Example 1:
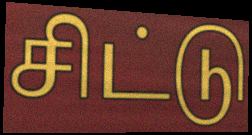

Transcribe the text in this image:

சிட்டு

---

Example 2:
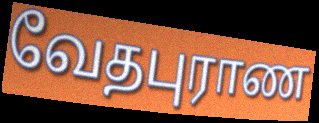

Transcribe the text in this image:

வேதபுராண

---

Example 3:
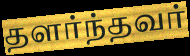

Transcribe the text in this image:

தளர்ந்தவர்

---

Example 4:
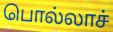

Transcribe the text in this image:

பொல்லாச்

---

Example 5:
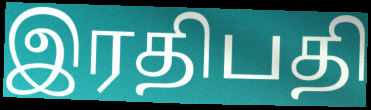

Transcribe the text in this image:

இரதிபதி